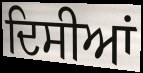
ਦਿਸੀਆਂ